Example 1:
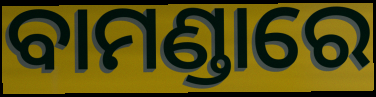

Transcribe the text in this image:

ବାମଣ୍ଡାରେ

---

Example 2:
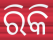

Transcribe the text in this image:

ରିକି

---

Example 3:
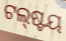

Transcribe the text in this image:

ଟଲ୍ଷ୍ଟୟ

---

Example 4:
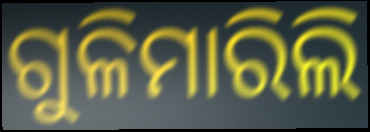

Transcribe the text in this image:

ଗୁଳିମାରିଲି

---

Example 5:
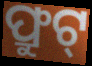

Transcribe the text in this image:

ଫ୍ରୁଟ୍